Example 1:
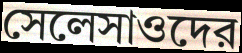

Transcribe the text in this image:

সেলেসাওদের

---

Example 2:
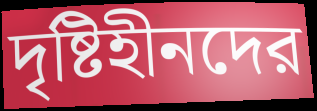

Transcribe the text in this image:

দৃষ্টিহীনদের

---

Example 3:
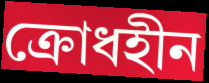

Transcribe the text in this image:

ক্রোধহীন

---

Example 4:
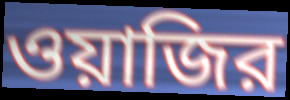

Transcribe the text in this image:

ওয়াজির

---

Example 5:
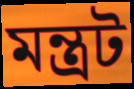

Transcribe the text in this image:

মন্ত্রট